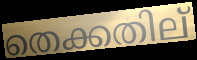
തെക്കതില്